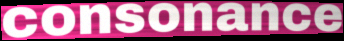
consonance